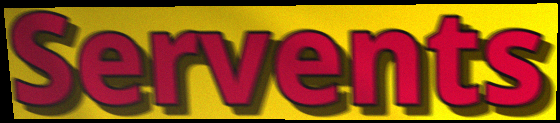
Servents